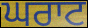
ਘਰਾਟ